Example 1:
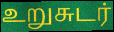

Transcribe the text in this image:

உறுசுடர்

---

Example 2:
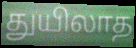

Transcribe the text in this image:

துயிலாத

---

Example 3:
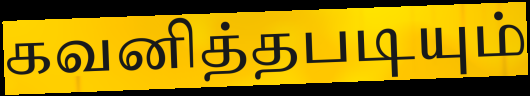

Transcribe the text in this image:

கவனித்தபடியும்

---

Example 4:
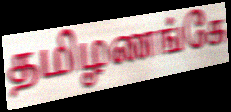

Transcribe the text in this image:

தமிழணங்கே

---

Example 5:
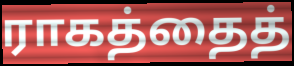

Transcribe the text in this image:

ராகத்தைத்